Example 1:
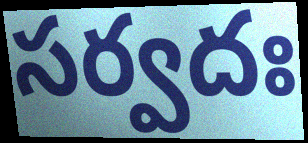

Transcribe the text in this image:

సర్వదః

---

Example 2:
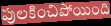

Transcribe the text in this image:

పులకించిపోయింది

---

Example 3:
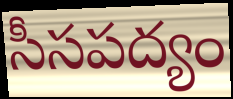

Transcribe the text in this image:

సీసపద్యం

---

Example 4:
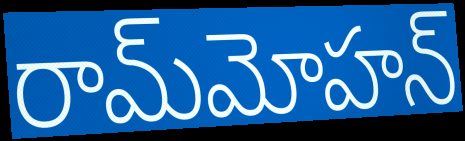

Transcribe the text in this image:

రామ్‌మోహన్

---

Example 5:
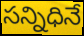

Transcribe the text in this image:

సన్నిధినే